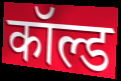
कॉल्ड